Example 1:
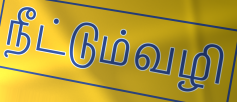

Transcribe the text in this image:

நீட்டும்வழி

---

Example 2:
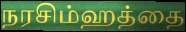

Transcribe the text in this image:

நரசிம்ஹத்தை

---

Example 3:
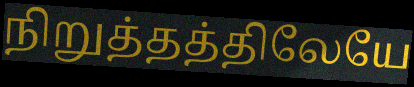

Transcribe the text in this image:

நிறுத்தத்திலேயே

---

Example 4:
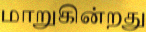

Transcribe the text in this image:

மாறுகின்றது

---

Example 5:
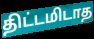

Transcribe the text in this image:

திட்டமிடாத